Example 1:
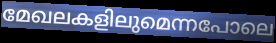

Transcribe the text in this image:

മേഖലകളിലുമെന്നപോലെ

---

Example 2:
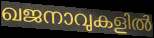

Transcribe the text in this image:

ഖജനാവുകളിൽ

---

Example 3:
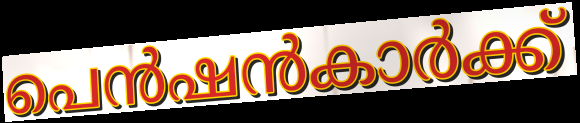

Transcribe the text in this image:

പെൻഷൻകാർക്ക്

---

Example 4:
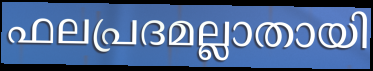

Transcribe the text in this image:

ഫലപ്രദമല്ലാതായി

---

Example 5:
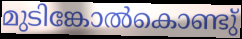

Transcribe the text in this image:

മുടിങ്കോൽകൊണ്ടു്